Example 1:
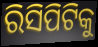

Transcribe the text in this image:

ରିସିପିଟିକୁ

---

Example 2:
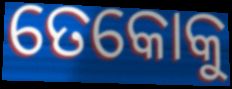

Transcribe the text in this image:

ତେକୋକୁ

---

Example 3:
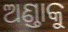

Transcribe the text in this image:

ଅଣ୍ଡାକୁ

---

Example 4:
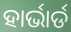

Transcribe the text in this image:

ହାର୍ଭାର୍ଡ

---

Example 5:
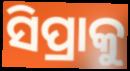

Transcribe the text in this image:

ସିପ୍ରାକୁ